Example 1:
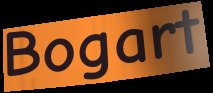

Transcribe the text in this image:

Bogart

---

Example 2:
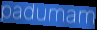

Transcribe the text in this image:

padumam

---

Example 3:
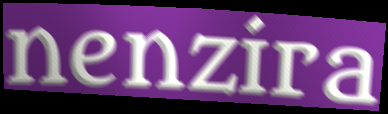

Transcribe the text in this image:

nenzira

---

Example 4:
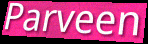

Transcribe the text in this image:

Parveen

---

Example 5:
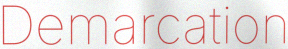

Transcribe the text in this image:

Demarcation